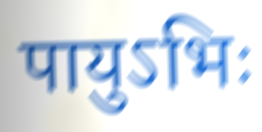
पायुऽभिः